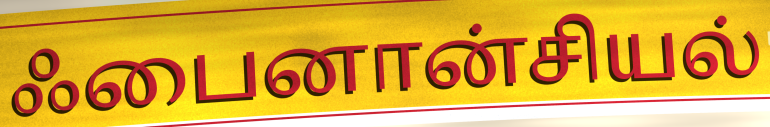
ஃபைனான்சியல்